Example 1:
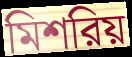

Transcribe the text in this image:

মিশরিয়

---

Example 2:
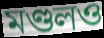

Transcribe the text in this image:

মণ্ডলও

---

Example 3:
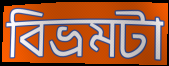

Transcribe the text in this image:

বিভ্রমটা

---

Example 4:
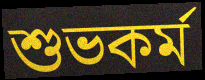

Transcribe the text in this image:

শুভকর্ম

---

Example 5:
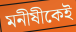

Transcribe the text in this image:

মনীষীকেই